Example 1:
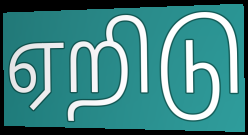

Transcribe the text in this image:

ஏறிடு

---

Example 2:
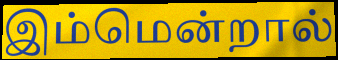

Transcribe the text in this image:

இம்மென்றால்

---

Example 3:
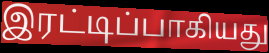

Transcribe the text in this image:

இரட்டிப்பாகியது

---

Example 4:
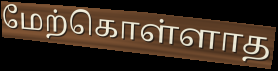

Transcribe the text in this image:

மேற்கொள்ளாத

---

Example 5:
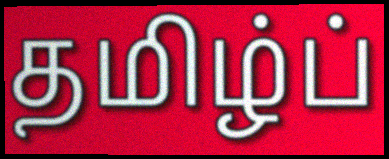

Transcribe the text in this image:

தமிழ்ப்